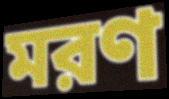
মরণ